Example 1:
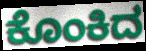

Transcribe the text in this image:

ಕೊಂಕಿದ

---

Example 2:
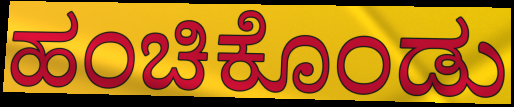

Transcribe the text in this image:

ಹಂಚಿಕೊಂಡು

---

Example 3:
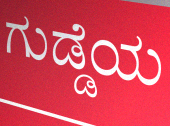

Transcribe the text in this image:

ಗುಡ್ಡೆಯ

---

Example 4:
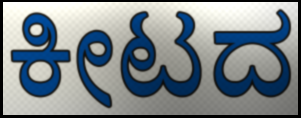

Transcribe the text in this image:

ಕೀಟದ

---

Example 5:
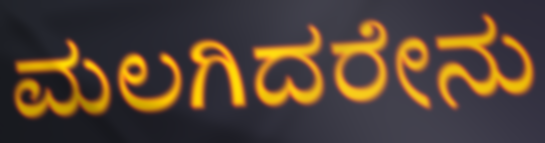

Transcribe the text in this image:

ಮಲಗಿದರೇನು